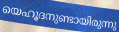
യെഹൂദനുണ്ടായിരുന്നു